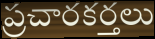
ప్రచారకర్తలు